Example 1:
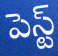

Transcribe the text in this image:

పెస్ట్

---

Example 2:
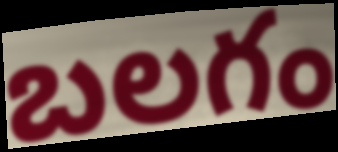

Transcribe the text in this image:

బలగం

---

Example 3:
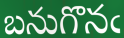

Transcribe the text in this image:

బనుగొనఁ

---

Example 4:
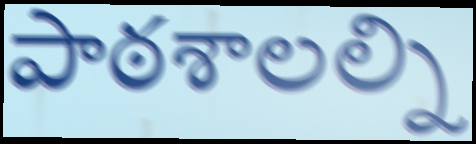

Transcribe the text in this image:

పాఠశాలల్ని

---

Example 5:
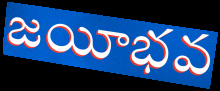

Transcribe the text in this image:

జయీభవ